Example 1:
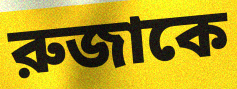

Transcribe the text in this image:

রুজাকে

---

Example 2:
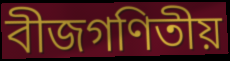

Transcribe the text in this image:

বীজগণিতীয়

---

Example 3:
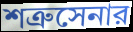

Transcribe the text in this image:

শত্রুসেনার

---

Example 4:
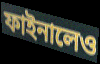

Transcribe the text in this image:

ফাইনালেও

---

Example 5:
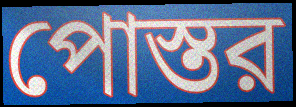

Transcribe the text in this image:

পোস্তর